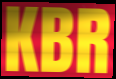
KBR